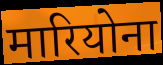
मारियोना